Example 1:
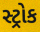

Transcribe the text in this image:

સ્ટ્રોક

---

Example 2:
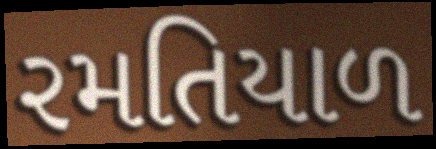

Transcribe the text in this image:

રમતિયાળ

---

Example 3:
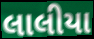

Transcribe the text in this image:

લાલીયા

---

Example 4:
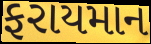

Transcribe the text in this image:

ફરાયમાન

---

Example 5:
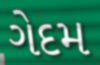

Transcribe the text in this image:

ગેદમ